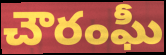
చౌరంఘీ